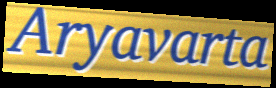
Aryavarta